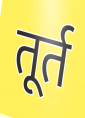
तूर्त